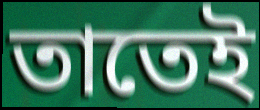
তাতেই